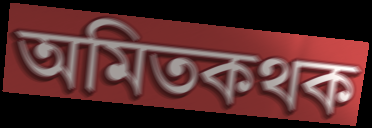
অমিতকথক